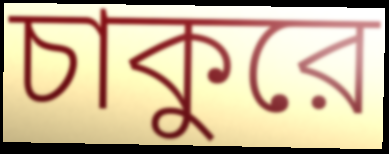
চাকুরে